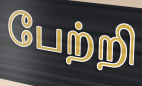
பேற்றி